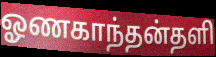
ஓணகாந்தன்தளி